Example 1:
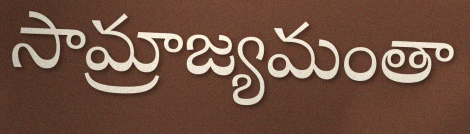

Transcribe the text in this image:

సామ్రాజ్యమంతా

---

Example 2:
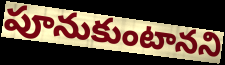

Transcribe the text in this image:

పూనుకుంటానని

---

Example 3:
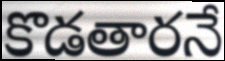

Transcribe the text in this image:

కొడతారనే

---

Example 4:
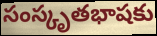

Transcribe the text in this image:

సంస్కృతభాషకు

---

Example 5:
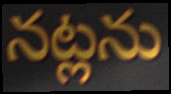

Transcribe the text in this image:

నట్లను